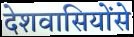
देशवासियोंसे